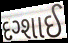
દગ્શાઈ